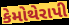
કેમોથેરાપી